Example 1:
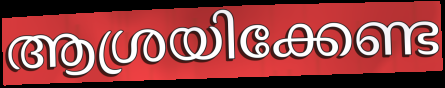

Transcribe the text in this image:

ആശ്രയിക്കേണ്ട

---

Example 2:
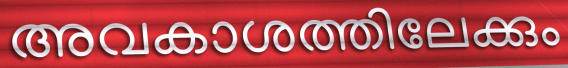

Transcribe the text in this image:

അവകാശത്തിലേക്കും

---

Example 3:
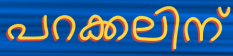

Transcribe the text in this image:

പറക്കലിന്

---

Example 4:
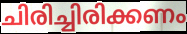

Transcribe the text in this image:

ചിരിച്ചിരിക്കണം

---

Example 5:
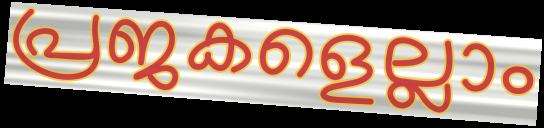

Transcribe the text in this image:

പ്രജകളെല്ലാം